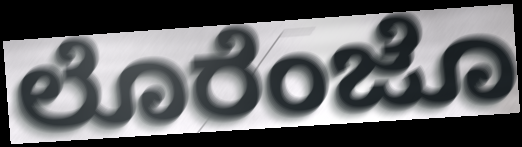
ಲೊರೆಂಜೊ